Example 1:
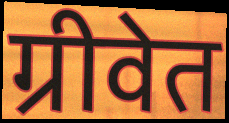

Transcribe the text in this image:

ग्रीवेत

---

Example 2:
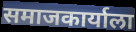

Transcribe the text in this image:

समाजकार्याला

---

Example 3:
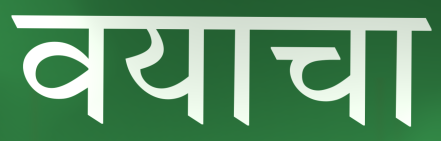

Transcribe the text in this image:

वयाचा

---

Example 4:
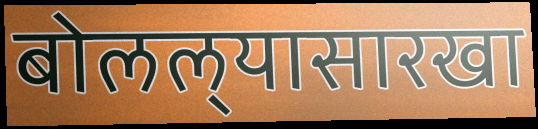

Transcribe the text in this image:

बोलल्यासारखा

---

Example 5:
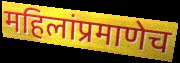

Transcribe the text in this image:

महिलांप्रमाणेच